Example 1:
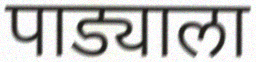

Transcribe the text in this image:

पाड्याला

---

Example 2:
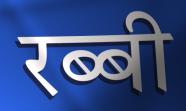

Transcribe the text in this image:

रब्बी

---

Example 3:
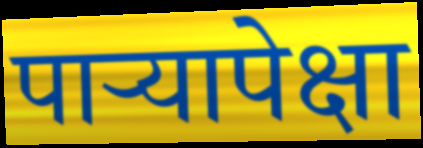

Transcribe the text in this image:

पाऱ्यापेक्षा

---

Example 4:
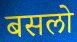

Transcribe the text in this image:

बसलो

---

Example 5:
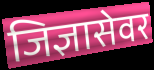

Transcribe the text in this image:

जिज्ञासेवर